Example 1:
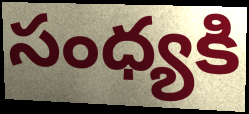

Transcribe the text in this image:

సంధ్యకి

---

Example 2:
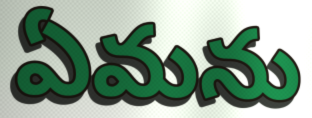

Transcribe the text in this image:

ఏమను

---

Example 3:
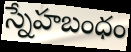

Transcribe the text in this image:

స్నేహబంధం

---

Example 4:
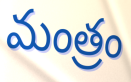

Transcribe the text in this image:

మంత్రం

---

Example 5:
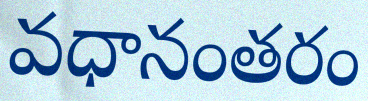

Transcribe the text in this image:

వధానంతరం